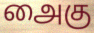
அைகு